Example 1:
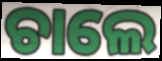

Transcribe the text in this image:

ଚାଲେ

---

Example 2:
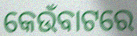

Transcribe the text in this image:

କେଉଁବାଟରେ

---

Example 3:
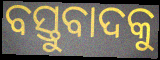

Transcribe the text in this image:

ବସ୍ତୁବାଦକୁ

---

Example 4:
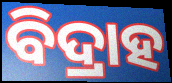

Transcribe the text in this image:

ବିଦ୍ରାହ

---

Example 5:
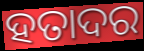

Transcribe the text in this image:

ହତାଦର